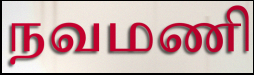
நவமணி